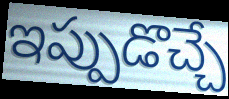
ఇప్పుడొచ్చే